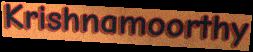
Krishnamoorthy